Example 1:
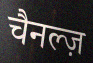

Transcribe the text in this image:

चैनल्ज़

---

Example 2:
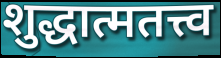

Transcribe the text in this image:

शुद्धात्मतत्त्व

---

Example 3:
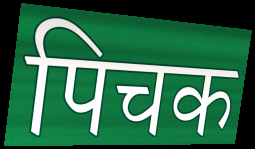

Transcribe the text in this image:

पिचक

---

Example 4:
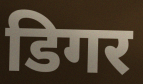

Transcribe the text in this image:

डिगर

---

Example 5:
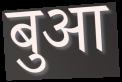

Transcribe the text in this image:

बुआ